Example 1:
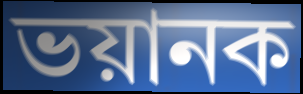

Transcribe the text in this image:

ভয়ানক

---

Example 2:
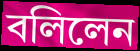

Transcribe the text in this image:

বলিলেন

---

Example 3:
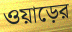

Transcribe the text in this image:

ওয়াড়ের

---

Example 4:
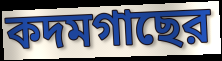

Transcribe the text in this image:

কদমগাছের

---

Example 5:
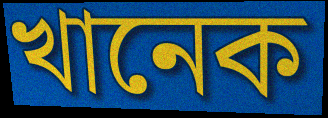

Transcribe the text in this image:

খানেক